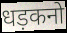
धड़कनो